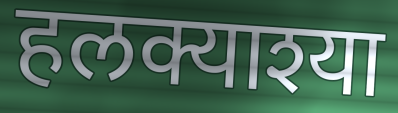
हलक्याश्या